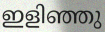
ഇളിഞ്ഞു